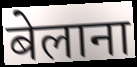
बेलाना